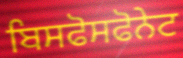
ਬਿਸਫੋਸਫੋਨੇਟ